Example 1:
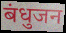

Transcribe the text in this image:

बंधुजन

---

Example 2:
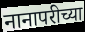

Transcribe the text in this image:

नानापरीच्या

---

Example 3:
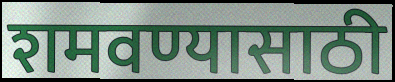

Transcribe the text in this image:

शमवण्यासाठी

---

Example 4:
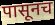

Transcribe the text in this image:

पासूनच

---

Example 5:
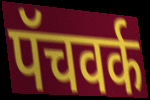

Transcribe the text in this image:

पॅचवर्क